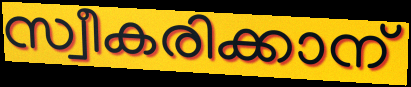
സ്വീകരിക്കാന്